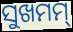
ସୁଖମମ୍